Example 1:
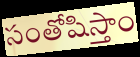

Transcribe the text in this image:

సంతోషిస్తాం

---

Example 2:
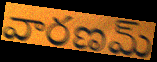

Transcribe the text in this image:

వారణమ్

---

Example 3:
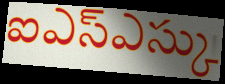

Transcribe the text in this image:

ఐఎస్ఎస్కు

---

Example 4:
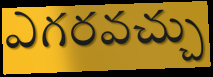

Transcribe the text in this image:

ఎగరవచ్చు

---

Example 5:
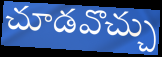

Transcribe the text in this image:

చూడవొచ్చు